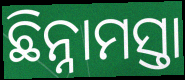
ଛିନ୍ନାମସ୍ତା